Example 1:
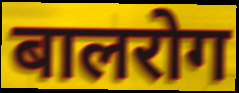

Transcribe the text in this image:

बालरोग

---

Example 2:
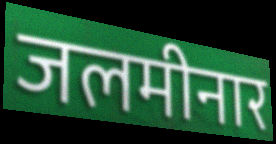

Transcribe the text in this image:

जलमीनार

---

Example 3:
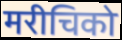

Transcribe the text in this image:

मरीचिको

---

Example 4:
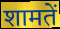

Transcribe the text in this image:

शामतें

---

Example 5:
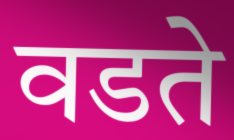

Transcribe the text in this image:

वडते